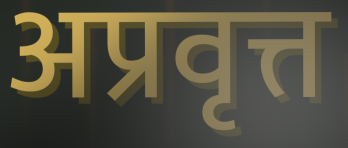
अप्रवृत्त